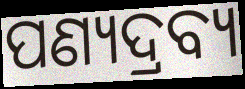
ପଣ୍ୟଦ୍ରବ୍ୟ